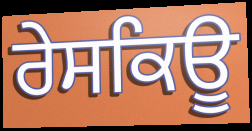
ਰੇਸਕਿਊ